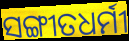
ସଙ୍ଗୀତଧର୍ମୀ